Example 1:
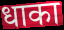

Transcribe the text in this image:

धाका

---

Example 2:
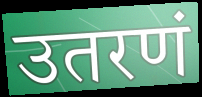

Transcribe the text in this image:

उतरणं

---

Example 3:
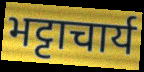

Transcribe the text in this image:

भट्टाचार्य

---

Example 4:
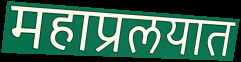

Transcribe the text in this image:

महाप्रलयात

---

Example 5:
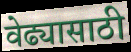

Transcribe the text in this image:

वेढ्यासाठी